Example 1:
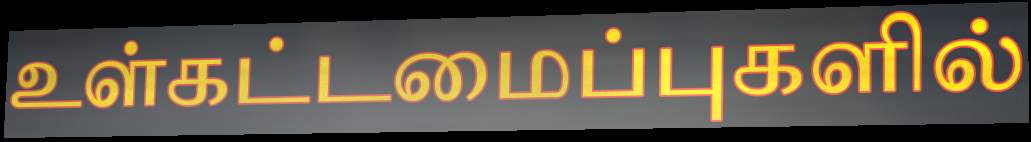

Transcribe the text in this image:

உள்கட்டமைப்புகளில்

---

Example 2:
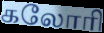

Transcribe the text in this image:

கலோரி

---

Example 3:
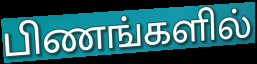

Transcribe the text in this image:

பிணங்களில்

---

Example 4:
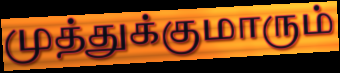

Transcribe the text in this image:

முத்துக்குமாரும்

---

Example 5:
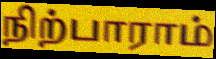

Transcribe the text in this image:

நிற்பாராம்